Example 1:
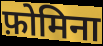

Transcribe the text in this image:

फ़ोमिना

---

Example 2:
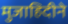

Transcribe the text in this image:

मुजाहिदीने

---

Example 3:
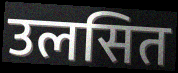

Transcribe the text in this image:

उलसित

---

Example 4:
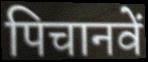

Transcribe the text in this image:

पिचानवें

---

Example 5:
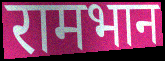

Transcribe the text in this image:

रामभान